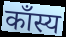
काँस्य